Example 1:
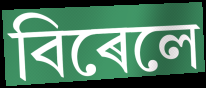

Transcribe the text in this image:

বিৰেলে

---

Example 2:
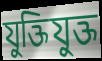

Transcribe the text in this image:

যুক্তিযুক্ত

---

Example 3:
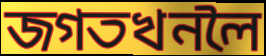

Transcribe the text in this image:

জগতখনলৈ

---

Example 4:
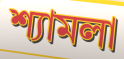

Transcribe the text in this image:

শ্যামলা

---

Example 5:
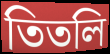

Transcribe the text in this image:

তিতলি